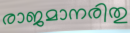
രാജമാനരിതു